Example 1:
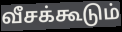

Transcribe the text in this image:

வீசக்கூடும்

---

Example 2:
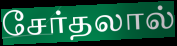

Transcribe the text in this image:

சேர்தலால்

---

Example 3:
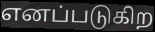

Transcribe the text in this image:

எனப்படுகிற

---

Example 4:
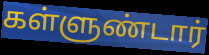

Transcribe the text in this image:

கள்ளுண்டார்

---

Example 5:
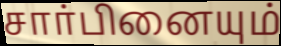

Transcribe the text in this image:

சார்பினையும்